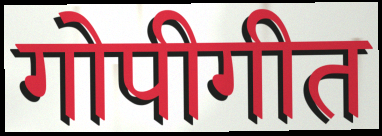
गोपीगीत